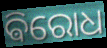
ଵିରୋଧ